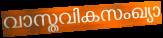
വാസ്തവികസംഖ്യാ